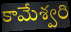
కామేశ్వరి